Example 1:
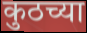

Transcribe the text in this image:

कुठच्या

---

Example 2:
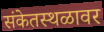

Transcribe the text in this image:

संकेतस्थळावर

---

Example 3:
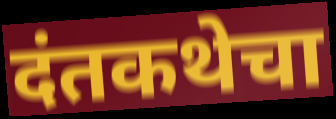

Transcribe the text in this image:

दंतकथेचा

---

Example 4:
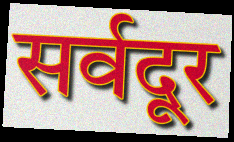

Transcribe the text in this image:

सर्वदूर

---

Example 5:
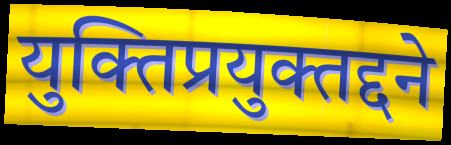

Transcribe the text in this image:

युक्तिप्रयुक्तद्दने